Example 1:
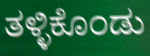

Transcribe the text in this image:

ತಳ್ಳಿಕೊಂಡು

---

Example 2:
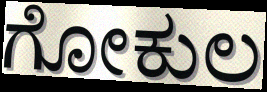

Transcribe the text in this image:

ಗೋಕುಲ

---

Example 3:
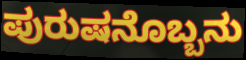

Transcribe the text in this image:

ಪುರುಷನೊಬ್ಬನು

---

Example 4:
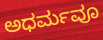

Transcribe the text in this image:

ಅಧರ್ಮವೂ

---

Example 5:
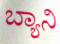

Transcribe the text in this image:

ಬ್ಯಾನಿ